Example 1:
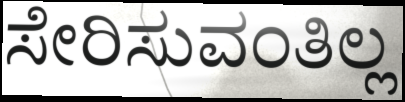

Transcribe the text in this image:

ಸೇರಿಸುವಂತಿಲ್ಲ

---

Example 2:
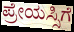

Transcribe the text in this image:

ಪ್ರೇಯಸ್ಸಿಗೆ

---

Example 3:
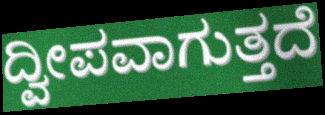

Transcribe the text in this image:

ದ್ವೀಪವಾಗುತ್ತದೆ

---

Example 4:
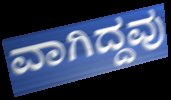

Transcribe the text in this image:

ವಾಗಿದ್ದವು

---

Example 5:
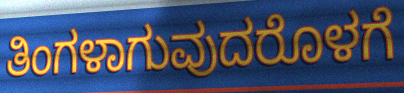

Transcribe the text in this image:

ತಿಂಗಳಾಗುವುದರೊಳಗೆ